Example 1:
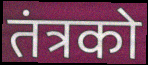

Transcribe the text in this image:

तंत्रको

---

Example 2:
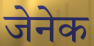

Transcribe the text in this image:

जेनेक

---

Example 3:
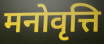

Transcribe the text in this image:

मनोवृत्ति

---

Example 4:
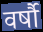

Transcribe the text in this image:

वर्षौ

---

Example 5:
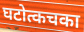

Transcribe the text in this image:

घटोत्कचका